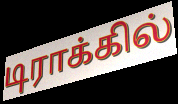
டிராக்கில்